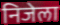
निजेला